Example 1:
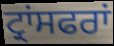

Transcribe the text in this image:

ਟ੍ਰਾਂਸਫਰਾਂ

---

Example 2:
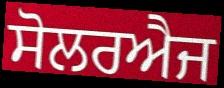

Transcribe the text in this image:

ਸੋਲਰਐਜ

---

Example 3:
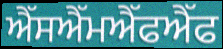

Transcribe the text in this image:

ਐੱਸਐੱਮਐੱਫਐੱਫ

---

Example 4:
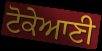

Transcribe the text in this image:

ਟੋਕੇਆਣੀ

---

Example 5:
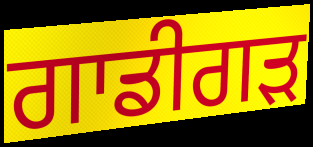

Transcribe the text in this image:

ਗਾਡੀਗੜ